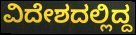
ವಿದೇಶದಲ್ಲಿದ್ದ